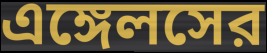
এঙ্গেলসের